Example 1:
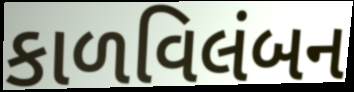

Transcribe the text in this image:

કાળવિલંબન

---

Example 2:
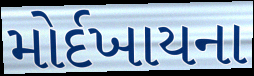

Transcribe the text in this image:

મોર્દખાયના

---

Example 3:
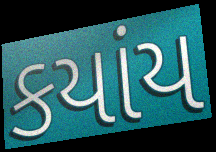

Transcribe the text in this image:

કયાંય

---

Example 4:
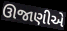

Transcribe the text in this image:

ઊજાણીએ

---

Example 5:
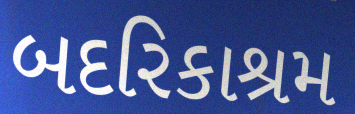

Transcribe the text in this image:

બદરિકાશ્રમ